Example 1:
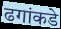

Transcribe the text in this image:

ढगांकडे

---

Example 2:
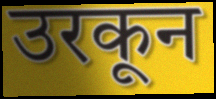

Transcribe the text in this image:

उरकून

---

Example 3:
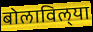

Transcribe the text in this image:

बोलाविल्या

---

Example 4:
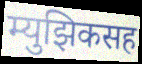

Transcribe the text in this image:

म्युझिकसह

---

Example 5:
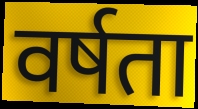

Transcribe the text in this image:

वर्षता